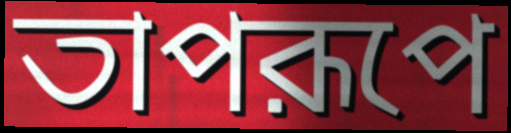
তাপরূপে